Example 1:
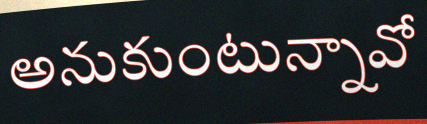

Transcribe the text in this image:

అనుకుంటున్నావో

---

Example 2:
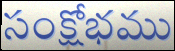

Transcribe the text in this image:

సంక్షోభము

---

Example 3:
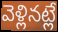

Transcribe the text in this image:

వెళ్లినట్లే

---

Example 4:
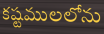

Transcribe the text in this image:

కష్టములలోను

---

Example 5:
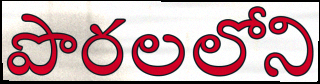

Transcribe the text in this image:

పొరలలోని